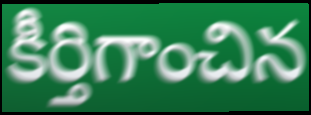
కీర్తిగాంచిన